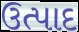
ઉત્પાદ